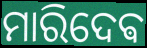
ମାରିଦେଵ